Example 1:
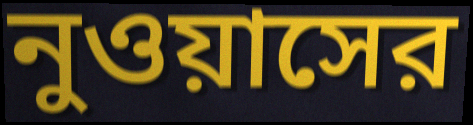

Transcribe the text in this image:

নুওয়াসের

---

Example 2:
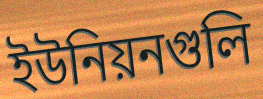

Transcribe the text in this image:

ইউনিয়নগুলি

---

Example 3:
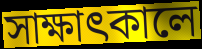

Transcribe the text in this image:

সাক্ষাৎকালে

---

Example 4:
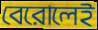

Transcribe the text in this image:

বেরোলেই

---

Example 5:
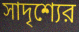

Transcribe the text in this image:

সাদৃশ্যের